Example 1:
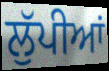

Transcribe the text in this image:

ਲੁੱਪੀਆਂ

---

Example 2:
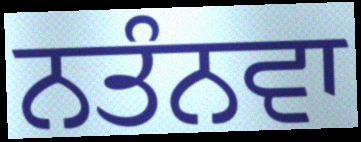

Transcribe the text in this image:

ਨਤੰਨਵਾ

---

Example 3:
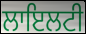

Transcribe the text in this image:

ਲਾਇਲਟੀ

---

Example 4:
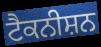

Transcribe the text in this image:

ਟੈਕਨੀਸ਼ਨ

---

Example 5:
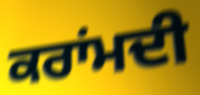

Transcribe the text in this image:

ਕਰਾਂਮਦੀ